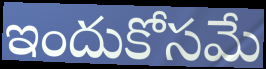
ఇందుకోసమే